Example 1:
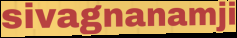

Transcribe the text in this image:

sivagnanamji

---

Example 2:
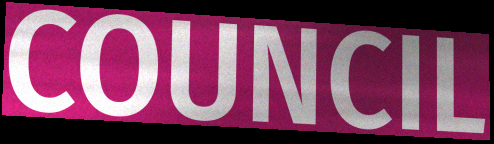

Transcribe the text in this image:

COUNCIL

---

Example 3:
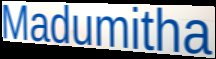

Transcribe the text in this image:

Madumitha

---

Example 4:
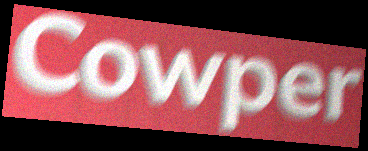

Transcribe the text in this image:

Cowper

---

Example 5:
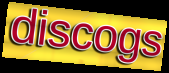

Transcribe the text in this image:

discogs